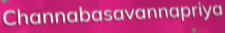
Channabasavannapriya